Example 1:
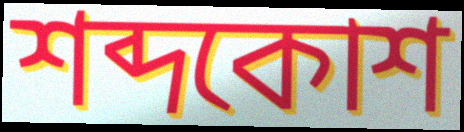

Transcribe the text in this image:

শব্দকোশ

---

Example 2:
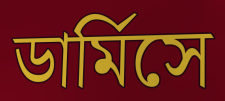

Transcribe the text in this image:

ডার্মিসে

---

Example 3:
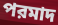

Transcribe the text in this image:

পরমাদ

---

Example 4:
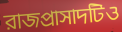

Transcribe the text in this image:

রাজপ্রাসাদটিও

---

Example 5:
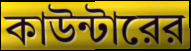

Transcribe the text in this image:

কাউন্টারের